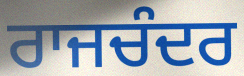
ਰਾਜਚੰਦਰ